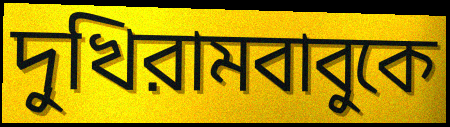
দুখিরামবাবুকে